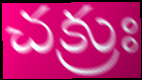
చక్రుః